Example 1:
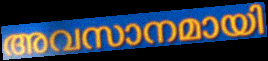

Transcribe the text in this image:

അവസാനമായി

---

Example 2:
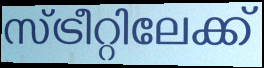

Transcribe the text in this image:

സ്ട്രീറ്റിലേക്ക്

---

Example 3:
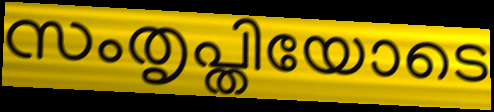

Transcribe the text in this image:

സംതൃപ്തിയോടെ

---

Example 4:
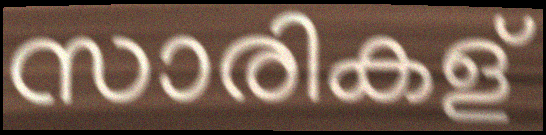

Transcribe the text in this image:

സാരികള്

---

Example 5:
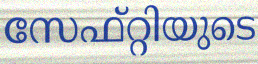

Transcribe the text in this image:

സേഫ്റ്റിയുടെ